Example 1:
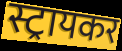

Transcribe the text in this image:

स्ट्रायकर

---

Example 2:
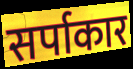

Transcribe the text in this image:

सर्पाकार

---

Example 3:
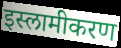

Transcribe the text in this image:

इस्लामीकरण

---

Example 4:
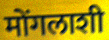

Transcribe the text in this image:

मोंगलाशी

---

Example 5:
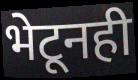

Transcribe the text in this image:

भेटूनही